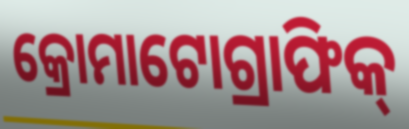
କ୍ରୋମାଟୋଗ୍ରାଫିକ୍